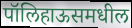
पॉलिहाऊसमधील